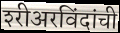
श्रीअरविंदांची